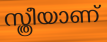
സ്ത്രീയാണ്